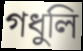
গধুলি